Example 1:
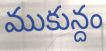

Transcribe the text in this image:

ముకున్దం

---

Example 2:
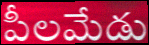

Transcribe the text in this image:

పీలమేడు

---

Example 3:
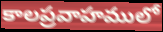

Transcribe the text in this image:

కాలప్రవాహములో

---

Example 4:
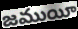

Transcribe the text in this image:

జముయీ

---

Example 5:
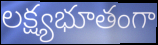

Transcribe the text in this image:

లక్ష్యభూతంగా